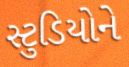
સ્ટુડિયોને